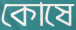
কোষে